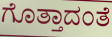
ಗೊತ್ತಾದಂತೆ